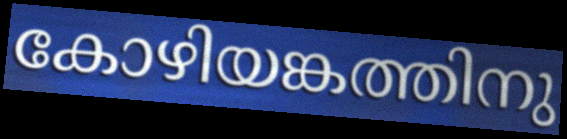
കോഴിയങ്കത്തിനു